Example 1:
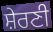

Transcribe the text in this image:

ਸ਼ੇਰਣੀ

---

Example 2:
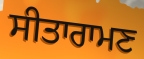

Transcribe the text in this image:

ਸੀਤਾਰਾਮਣ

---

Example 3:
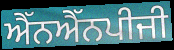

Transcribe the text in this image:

ਐੱਨਐੱਨਪੀਜੀ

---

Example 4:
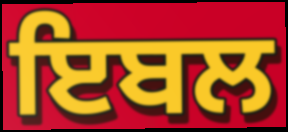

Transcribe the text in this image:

ਇਬਲ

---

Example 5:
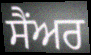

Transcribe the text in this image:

ਸੈਂਅਰ